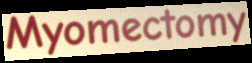
Myomectomy